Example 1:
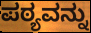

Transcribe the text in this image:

ಪಠ್ಯವನ್ನು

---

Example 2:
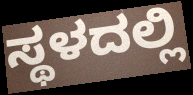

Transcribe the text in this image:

ಸ್ಥಳದಲ್ಲಿ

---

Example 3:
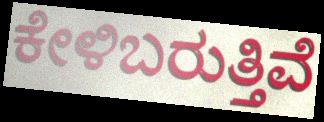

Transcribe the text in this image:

ಕೇಳಿಬರುತ್ತಿವೆ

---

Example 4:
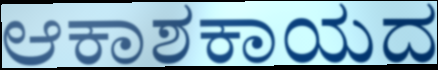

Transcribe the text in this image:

ಆಕಾಶಕಾಯದ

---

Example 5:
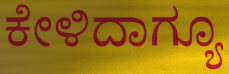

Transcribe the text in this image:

ಕೇಳಿದಾಗ್ಯೂ